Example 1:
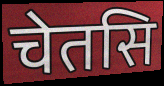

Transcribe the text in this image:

चेतसि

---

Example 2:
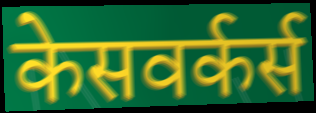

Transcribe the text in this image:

केसवर्कर्स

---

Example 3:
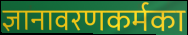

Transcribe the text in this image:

ज्ञानावरणकर्मका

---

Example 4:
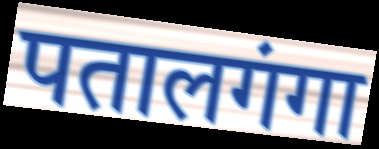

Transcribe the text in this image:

पतालगंगा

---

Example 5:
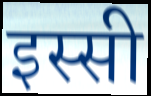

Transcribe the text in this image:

इस्सी